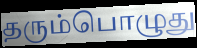
தரும்பொழுது